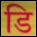
डि